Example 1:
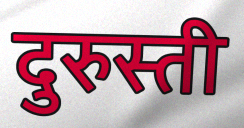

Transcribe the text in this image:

दुरुस्ती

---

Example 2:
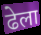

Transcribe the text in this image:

ढेला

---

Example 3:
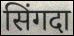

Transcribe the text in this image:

सिंगदा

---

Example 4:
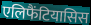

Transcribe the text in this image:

एलिफैंटियासिस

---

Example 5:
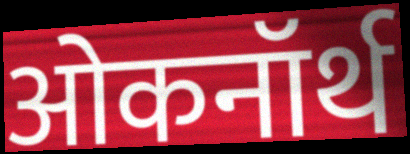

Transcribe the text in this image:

ओकनॉर्थ